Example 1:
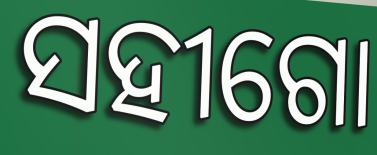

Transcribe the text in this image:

ସହୀଗୋ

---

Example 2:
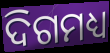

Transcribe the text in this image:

ଦିଗମଧ୍ୟ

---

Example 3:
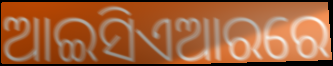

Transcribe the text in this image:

ଆଇସିଏଆରରେ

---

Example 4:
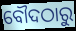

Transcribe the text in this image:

ବୌଦଠାରୁ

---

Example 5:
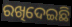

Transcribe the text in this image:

ରଖିଦେଇଛି